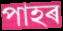
পাহৰ